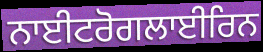
ਨਾਈਟਰੋਗਲਾਈਰਿਨ